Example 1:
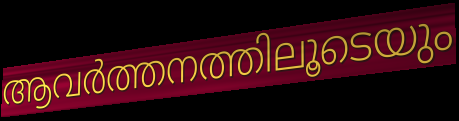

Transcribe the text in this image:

ആവർത്തനത്തിലൂടെയും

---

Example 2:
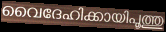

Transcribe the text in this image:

വൈദേഹിക്കായിപൂത്തു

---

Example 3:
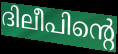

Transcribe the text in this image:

ദിലീപിന്റെ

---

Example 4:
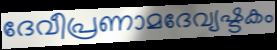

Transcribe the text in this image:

ദേവീപ്രണാമദേവ്യഷ്ടകം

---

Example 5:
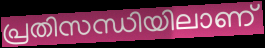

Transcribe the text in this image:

പ്രതിസന്ധിയിലാണ്